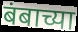
बंबाच्या